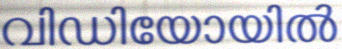
വിഡിയോയിൽ